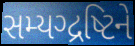
સમ્યગ્દ્રષ્ટિને